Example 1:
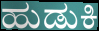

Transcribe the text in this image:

ಹುಡುಕಿ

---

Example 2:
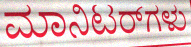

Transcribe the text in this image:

ಮಾನಿಟರ್‌ಗಳು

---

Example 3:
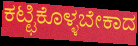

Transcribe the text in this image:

ಕಟ್ಟಿಕೊಳ್ಳಬೇಕಾದ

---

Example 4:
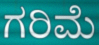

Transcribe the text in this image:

ಗರಿಮೆ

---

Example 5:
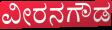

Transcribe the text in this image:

ವೀರನಗೌಡ